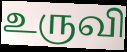
உருவி